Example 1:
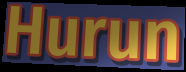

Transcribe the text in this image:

Hurun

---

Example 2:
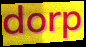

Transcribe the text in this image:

dorp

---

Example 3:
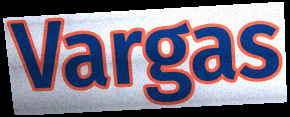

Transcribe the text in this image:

Vargas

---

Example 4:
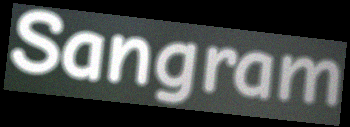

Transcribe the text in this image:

Sangram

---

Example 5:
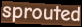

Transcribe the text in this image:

sprouted